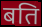
बति